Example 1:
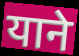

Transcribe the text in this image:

याने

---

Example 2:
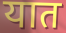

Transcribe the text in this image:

यात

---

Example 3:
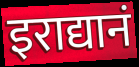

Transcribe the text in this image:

इराद्यानं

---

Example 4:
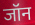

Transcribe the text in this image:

जॉन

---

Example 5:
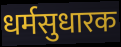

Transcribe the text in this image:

धर्मसुधारक